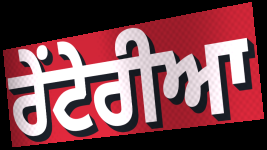
ਰੇਂਟੇਰੀਆ